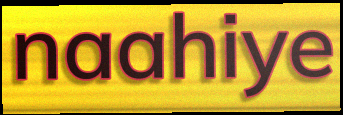
naahiye